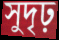
সুদৃঢ়